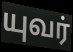
யுவர்